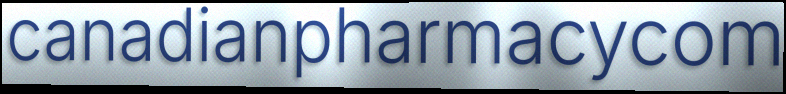
canadianpharmacycom